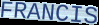
FRANCIS